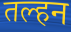
तल्हन